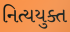
નિત્યયુક્ત